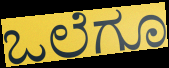
ಒಲೆಗೂ